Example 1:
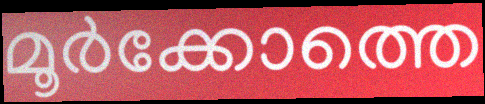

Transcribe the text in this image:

മൂർക്കോത്തെ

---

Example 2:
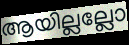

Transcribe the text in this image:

ആയില്ലല്ലോ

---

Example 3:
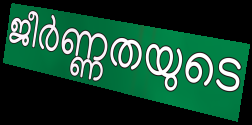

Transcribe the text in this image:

ജീർണ്ണതയുടെ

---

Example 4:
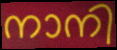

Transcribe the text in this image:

നാനി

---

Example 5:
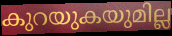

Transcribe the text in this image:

കുറയുകയുമില്ല